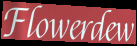
Flowerdew